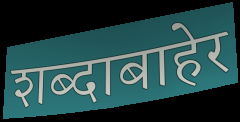
शब्दाबाहेर